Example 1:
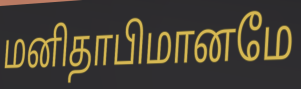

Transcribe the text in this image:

மனிதாபிமானமே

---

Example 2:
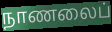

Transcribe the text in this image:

நாணலைப்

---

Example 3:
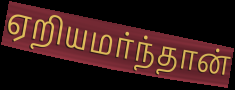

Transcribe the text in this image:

ஏறியமர்ந்தான்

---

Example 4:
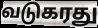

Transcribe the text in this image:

வடுகரது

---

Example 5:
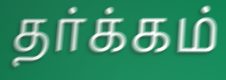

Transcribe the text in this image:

தர்க்கம்